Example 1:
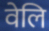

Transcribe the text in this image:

वेलि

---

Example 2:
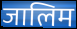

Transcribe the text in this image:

जालिम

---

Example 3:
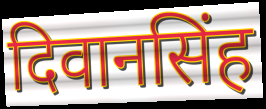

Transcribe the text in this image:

दिवानसिंह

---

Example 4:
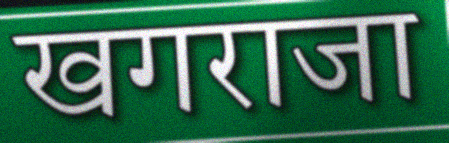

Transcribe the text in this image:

खगराजा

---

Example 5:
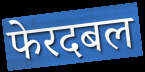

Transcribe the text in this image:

फेरदबल